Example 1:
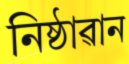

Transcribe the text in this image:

নিষ্ঠাৱান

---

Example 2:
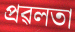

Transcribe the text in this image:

প্ৰৱলতা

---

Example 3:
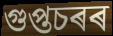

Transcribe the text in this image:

গুপ্তচৰৰ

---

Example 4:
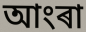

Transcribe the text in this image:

আংৰা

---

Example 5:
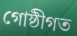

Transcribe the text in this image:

গোষ্ঠীগত